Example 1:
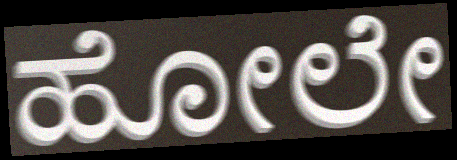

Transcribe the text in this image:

ಹೋಲೇ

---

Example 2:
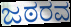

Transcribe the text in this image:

ಜಠರವ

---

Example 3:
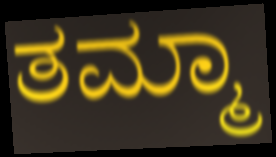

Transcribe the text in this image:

ತಮ್ಮಾ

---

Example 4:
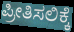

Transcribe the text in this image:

ಪ್ರೀತಿಸಲಿಕ್ಕೆ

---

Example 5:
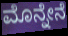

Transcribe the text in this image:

ಮೊನ್ನೇನೆ